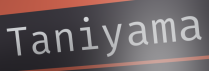
Taniyama